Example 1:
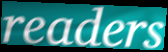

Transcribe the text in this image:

readers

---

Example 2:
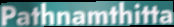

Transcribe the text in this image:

Pathnamthitta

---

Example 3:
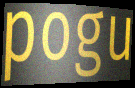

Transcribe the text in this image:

pogu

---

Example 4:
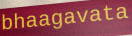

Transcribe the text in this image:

bhaagavata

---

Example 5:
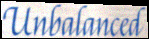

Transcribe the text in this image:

Unbalanced